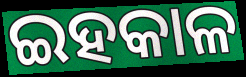
ଇହକାଳ